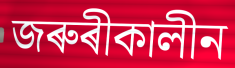
জৰুৰীকালীন